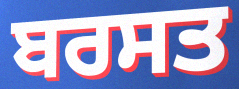
ਬਰਸਤ